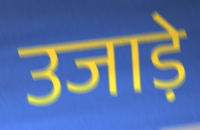
उजाड़े